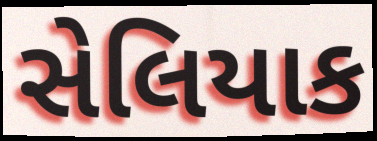
સેલિયાક